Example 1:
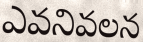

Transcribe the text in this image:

ఎవనివలన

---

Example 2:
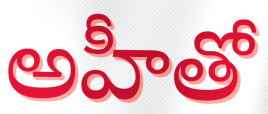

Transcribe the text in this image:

అహీతో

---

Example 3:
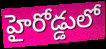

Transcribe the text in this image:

హైరోడ్డులో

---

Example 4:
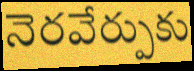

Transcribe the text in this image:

నెరవేర్పుకు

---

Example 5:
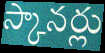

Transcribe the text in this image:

స్కానర్లు